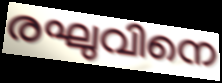
രഘുവിനെ